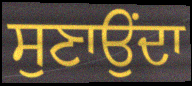
ਸੁਣਾਉਂਦਾ